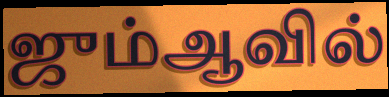
ஜும்ஆவில்